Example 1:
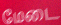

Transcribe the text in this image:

மேடை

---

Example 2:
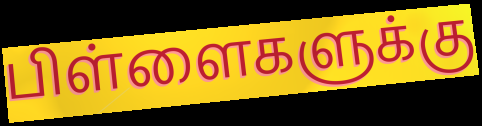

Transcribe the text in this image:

பிள்ளைகளுக்கு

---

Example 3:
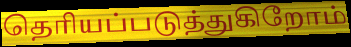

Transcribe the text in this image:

தெரியப்படுத்துகிறோம்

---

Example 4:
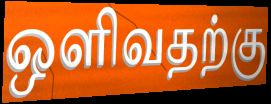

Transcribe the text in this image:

ஒளிவதற்கு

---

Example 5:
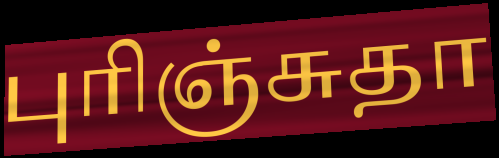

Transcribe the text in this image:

புரிஞ்சுதா